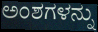
ಅಂಶಗಳನ್ನು